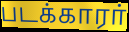
படக்காரர்